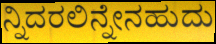
ನ್ನಿದರಲಿನ್ನೇನಹುದು